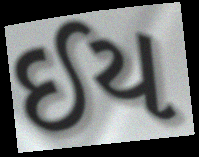
ઈય